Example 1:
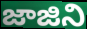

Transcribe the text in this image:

జాజిని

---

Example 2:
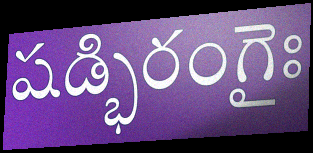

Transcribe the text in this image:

షడ్భిరంగైః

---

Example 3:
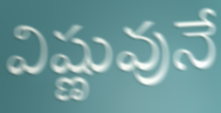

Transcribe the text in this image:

విష్ణువునే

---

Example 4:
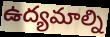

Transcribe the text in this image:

ఉద్యమాల్ని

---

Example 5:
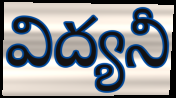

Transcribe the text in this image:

విద్యనీ